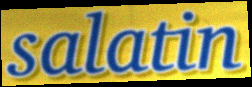
salatin